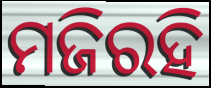
ମଜିରହି